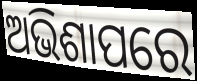
ଅଭିଶାପରେ